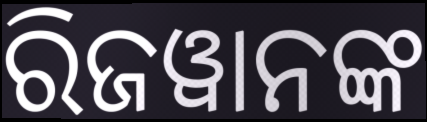
ରିଜୱାନଙ୍କ